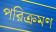
পরিক্রমণ